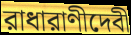
রাধারাণীদেবী